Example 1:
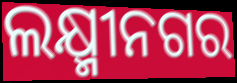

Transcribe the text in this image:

ଲକ୍ଷ୍ମୀନଗର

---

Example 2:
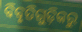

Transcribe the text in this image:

ବିବୃତିଗୁଡ଼ିକରୁ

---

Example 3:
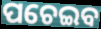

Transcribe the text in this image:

ପଚେଇବ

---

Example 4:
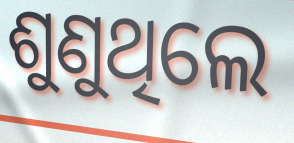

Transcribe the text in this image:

ଶୁଣୁଥିଲେ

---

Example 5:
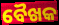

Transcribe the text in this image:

ବୈଖକ